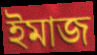
ইমাজ